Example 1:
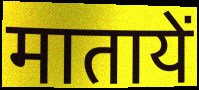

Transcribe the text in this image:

मातायें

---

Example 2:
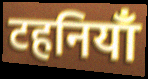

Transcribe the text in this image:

टहनियाँ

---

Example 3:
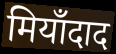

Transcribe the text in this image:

मियाँदाद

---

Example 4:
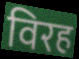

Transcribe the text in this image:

विरह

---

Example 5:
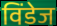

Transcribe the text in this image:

विंडेज